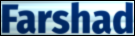
Farshad